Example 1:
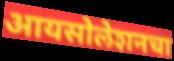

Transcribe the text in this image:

आयसोलेशनचा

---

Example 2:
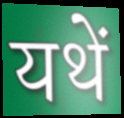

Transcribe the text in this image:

यथें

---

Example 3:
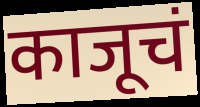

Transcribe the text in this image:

काजूचं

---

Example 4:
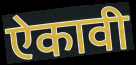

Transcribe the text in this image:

ऐकावी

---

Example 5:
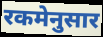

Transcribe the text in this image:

रकमेनुसार